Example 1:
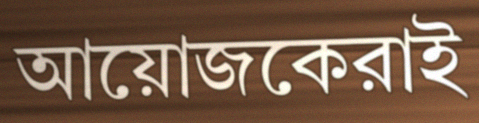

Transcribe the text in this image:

আয়োজকেরাই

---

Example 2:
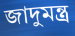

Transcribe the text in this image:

জাদুমন্ত্র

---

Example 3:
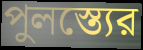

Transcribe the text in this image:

পুলস্ত্যের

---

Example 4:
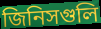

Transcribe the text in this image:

জিনিসগুলি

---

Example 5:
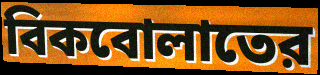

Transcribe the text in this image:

বিকবোলাতের